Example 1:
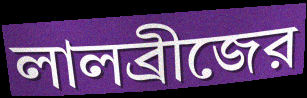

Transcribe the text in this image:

লালব্রীজের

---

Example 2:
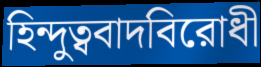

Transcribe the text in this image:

হিন্দুত্ববাদবিরোধী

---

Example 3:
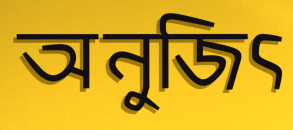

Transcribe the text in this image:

অনুজিৎ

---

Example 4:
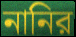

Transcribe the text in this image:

নানির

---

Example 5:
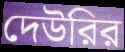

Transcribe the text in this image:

দেউরির